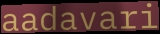
aadavari